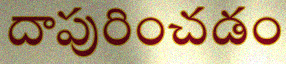
దాపురించడం